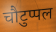
चौटुप्पल